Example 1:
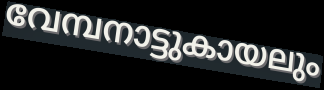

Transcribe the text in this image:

വേമ്പനാട്ടുകായലും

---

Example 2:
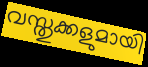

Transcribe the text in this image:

വസ്തുക്കളുമായി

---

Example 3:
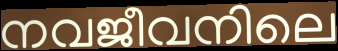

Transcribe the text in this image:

നവജീവനിലെ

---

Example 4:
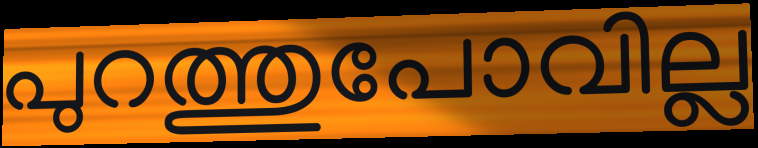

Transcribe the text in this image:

പുറത്തുപോവില്ല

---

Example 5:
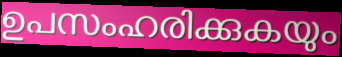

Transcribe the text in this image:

ഉപസംഹരിക്കുകയും